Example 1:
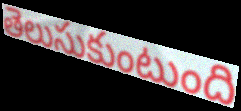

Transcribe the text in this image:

తెలుసుకుంటుంది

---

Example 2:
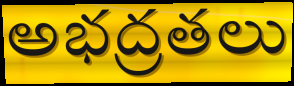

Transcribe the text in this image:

అభద్రతలు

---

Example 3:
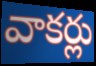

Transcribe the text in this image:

వాకర్లు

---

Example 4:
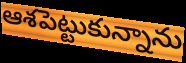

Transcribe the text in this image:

ఆశపెట్టుకున్నాను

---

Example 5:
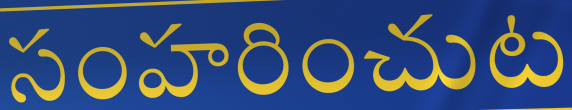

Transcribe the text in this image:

సంహరించుట